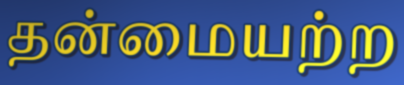
தன்மையற்ற